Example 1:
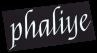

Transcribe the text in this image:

phaliye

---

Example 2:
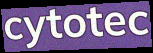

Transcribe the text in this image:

cytotec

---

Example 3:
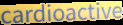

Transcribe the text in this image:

cardioactive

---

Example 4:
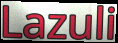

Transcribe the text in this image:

Lazuli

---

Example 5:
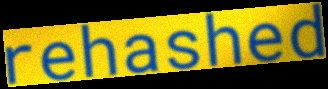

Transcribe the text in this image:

rehashed